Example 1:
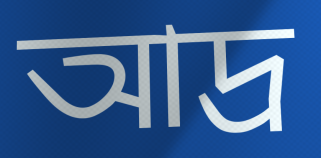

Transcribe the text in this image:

আদ্র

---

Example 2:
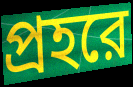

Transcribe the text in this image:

প্রহরে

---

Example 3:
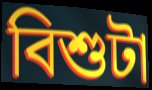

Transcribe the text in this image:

বিশুটা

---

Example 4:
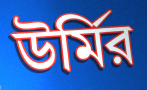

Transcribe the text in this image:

উর্মির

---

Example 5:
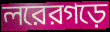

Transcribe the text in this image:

লরেরগড়ে